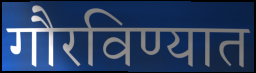
गौरविण्यात